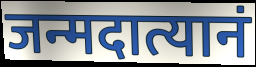
जन्मदात्यानं